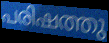
പരിഷത്തു